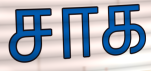
சாக